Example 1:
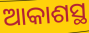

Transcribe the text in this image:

ଆକାଶସ୍ଥ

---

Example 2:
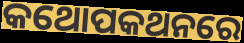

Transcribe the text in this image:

କଥୋପକଥନରେ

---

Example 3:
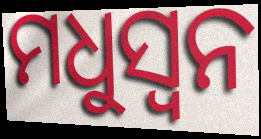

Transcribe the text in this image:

ମଧୁସ୍ୱନ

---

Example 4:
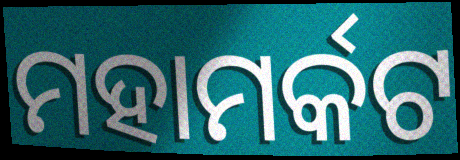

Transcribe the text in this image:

ମହାମର୍କଟ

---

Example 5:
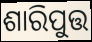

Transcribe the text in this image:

ଶାରିପୁତ୍ତ